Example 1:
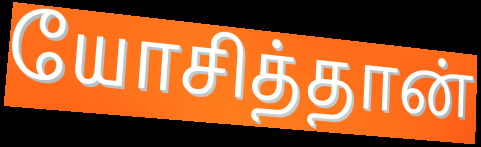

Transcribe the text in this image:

யோசித்தான்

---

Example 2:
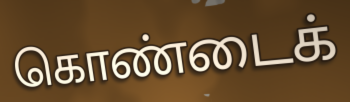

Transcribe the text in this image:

கொண்டைக்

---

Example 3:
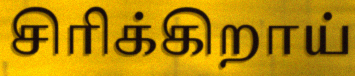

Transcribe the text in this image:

சிரிக்கிறாய்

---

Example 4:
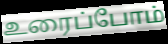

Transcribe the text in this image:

உரைப்போம்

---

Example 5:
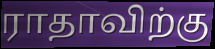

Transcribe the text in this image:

ராதாவிற்கு